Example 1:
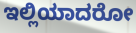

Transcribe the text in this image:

ಇಲ್ಲಿಯಾದರೋ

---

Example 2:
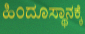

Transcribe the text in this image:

ಹಿಂದೂಸ್ಥಾನಕ್ಕೆ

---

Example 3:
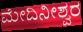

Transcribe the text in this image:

ಮೇದಿನೀಶ್ವರ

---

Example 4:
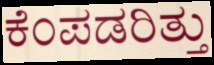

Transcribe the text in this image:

ಕೆಂಪಡರಿತ್ತು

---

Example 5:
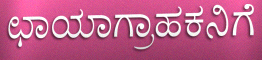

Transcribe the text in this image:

ಛಾಯಾಗ್ರಾಹಕನಿಗೆ